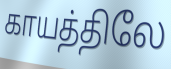
காயத்திலே